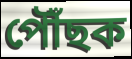
পৌঁছক